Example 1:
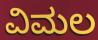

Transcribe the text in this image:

ವಿಮಲ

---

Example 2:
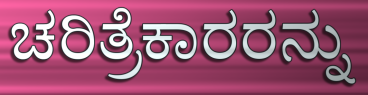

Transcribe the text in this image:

ಚರಿತ್ರೆಕಾರರನ್ನು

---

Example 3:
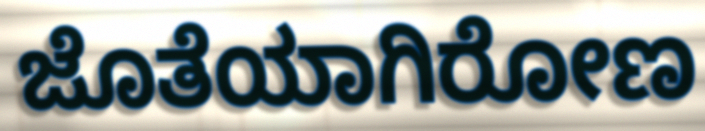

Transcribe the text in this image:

ಜೊತೆಯಾಗಿರೋಣ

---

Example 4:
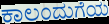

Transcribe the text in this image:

ಕಾಲಂದುಗೆಯ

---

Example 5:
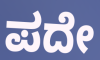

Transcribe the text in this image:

ಪದೇ